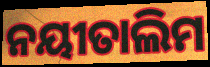
ନୟୀତାଲିମ